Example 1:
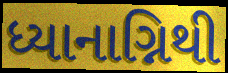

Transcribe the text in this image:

ધ્યાનાગ્નિથી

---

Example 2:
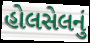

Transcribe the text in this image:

હોલસેલનું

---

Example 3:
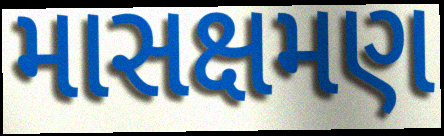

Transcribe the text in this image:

માસક્ષમણ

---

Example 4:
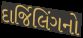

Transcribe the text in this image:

દાર્જિલિંગનો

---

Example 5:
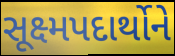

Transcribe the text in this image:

સૂક્ષ્મપદાર્થોને